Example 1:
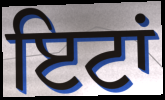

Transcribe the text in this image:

ਇਟਾਂ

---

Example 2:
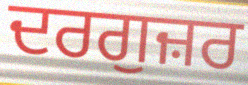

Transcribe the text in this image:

ਦਰਗੁਜ਼ਰ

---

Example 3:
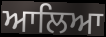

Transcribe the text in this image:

ਆਲਿਆ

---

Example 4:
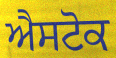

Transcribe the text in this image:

ਐਸਟੋਕ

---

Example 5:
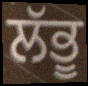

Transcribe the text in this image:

ਲੱਭੂ